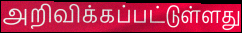
அறிவிக்கப்பட்டுள்ளது